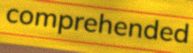
comprehended